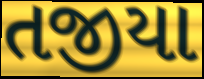
તજીયા